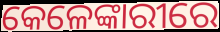
କେଳେଙ୍କାରୀରେ